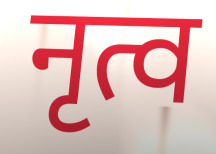
नृत्व